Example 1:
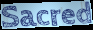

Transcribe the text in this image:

Sacred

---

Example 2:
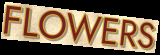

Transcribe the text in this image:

FLOWERS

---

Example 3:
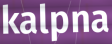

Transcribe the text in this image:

kalpna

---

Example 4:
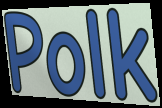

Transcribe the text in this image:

Polk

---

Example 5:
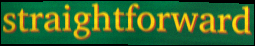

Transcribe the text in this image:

straightforward